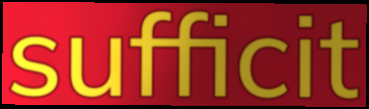
sufficit